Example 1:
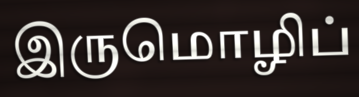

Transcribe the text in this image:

இருமொழிப்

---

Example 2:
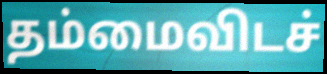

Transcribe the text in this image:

தம்மைவிடச்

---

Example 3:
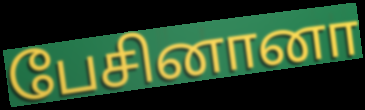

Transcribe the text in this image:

பேசினானா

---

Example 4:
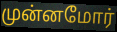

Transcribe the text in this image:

முன்னமோர்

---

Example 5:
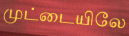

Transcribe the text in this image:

முட்டையிலே